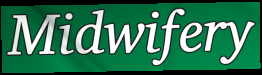
Midwifery